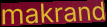
makrand